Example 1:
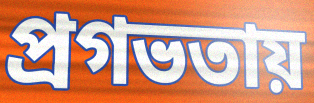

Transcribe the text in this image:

প্রগভতায়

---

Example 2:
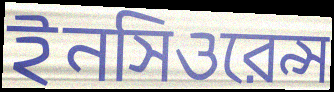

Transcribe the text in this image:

ইনসিওরেন্স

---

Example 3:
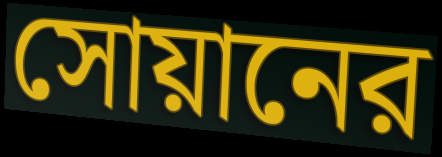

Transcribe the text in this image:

সোয়ানের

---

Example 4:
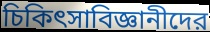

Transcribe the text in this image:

চিকিৎসাবিজ্ঞানীদের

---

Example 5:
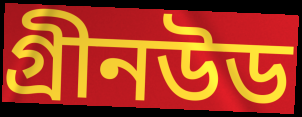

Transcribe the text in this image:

গ্রীনউড